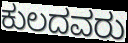
ಕುಲದವರು